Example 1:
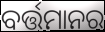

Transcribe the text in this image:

ବର୍ତ୍ତମାନର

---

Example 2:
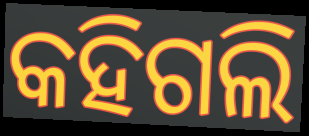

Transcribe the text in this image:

କହିଗଲି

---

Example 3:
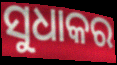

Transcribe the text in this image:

ସୁଧାକର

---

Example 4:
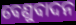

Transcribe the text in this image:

ବେଣୁବାଦନ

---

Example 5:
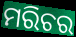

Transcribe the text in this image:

ମରିଚର